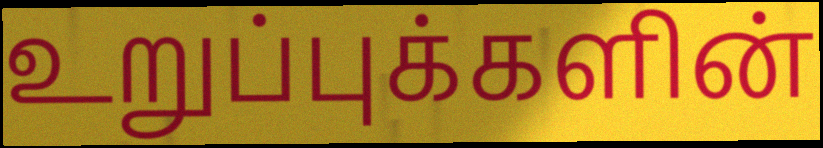
உறுப்புக்களின்